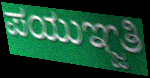
ಪಯುಞ್ಜತಿ